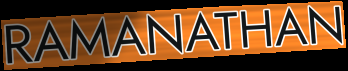
RAMANATHAN